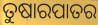
ତୁଷାରପାତର